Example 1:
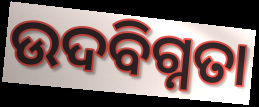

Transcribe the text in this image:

ଉଦବିଗ୍ନତା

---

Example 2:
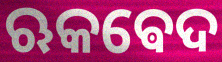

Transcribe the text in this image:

ଋକଵେଦ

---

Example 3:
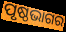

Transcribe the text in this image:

ପୃଷ୍ଠଭାଗର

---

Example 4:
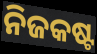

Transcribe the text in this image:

ନିଜକଷ୍ଟ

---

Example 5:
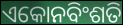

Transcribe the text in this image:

ଏକୋନବିଂଶତି